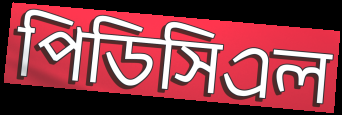
পিডিসিএল